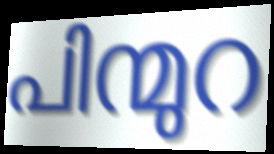
പിന്മുറ